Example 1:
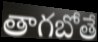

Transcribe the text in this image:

తాగబోతే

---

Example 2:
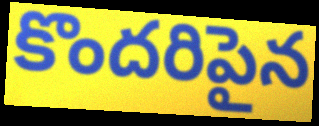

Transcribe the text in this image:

కొందరిపైన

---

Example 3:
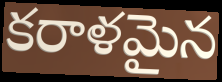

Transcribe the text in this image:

కరాళమైన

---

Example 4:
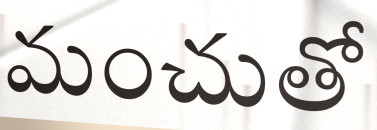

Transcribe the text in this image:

మంచుతో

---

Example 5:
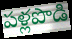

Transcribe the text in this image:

పళ్లపొడి